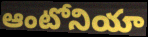
ఆంటోనియా